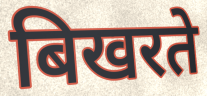
बिखरते